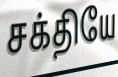
சக்தியே